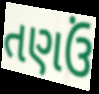
તણઉં